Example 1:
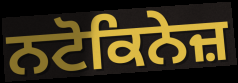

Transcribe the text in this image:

ਨਟੋਕਿਨੇਜ਼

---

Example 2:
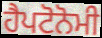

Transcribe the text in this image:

ਹੈਪਟੋਨੋਮੀ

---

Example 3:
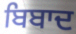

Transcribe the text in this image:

ਬਿਬਾਦ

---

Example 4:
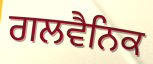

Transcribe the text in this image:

ਗਲਵੈਨਿਕ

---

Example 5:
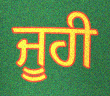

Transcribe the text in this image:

ਜੂਹੀ